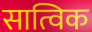
सात्विक